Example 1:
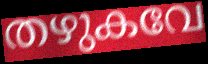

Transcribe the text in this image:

തഴുകവേ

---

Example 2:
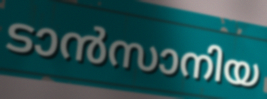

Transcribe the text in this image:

ടാൻസാനിയ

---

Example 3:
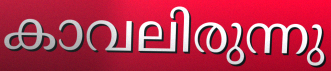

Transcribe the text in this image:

കാവലിരുന്നു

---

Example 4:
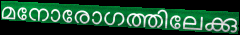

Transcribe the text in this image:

മനോരോഗത്തിലേക്കു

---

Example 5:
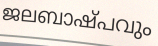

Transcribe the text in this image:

ജലബാഷ്പവും